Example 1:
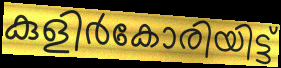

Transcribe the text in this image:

കുളിർകോരിയിട്ട്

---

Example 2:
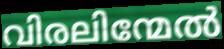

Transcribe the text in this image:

വിരലിന്മേൽ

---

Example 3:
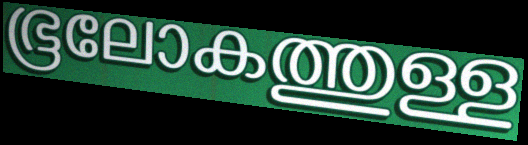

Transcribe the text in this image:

ഭൂലോകത്തുള്ള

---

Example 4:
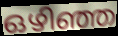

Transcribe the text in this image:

ഒഴിഞ്ഞ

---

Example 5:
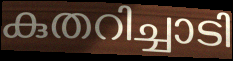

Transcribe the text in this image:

കുതറിച്ചാടി